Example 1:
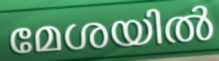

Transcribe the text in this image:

മേശയിൽ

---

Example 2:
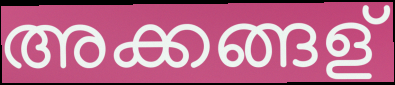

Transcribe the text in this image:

അക്കങ്ങള്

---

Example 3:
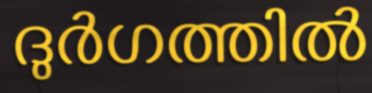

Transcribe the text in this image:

ദുർഗത്തിൽ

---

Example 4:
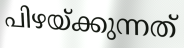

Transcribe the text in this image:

പിഴയ്ക്കുന്നത്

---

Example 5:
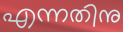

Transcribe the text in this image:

എന്നതിനു